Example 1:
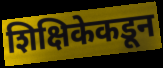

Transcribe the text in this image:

शिक्षिकेकडून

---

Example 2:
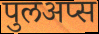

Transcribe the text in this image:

पुलअप्स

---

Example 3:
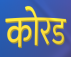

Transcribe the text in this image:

कोरड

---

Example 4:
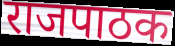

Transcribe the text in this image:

राजपाठक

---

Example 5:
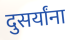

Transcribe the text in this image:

दुसर्यांना